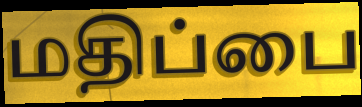
மதிப்பை